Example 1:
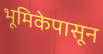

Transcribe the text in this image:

भूमिकेपासून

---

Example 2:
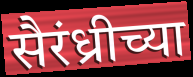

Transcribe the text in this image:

सैरंध्रीच्या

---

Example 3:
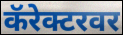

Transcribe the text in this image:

कॅरेक्टरवर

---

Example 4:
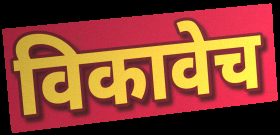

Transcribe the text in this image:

विकावेच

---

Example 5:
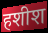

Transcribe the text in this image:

हशीश